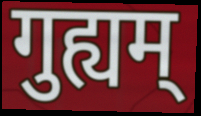
गुह्यम्